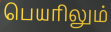
பெயரிலும்